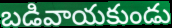
బడివాయకుండు